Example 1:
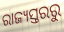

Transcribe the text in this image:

ରାଜ୍ୟସ୍ତରରୁ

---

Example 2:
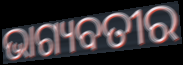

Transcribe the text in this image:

ଭାଗ୍ୟବତୀର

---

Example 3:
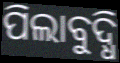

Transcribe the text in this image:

ପିଲାବୁଦ୍ଧି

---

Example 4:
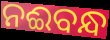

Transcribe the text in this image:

ନଈବନ୍ଧ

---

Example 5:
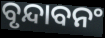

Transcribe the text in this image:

ବୃନ୍ଦାବନଂ